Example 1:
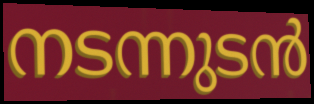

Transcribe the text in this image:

നടന്നുടൻ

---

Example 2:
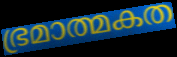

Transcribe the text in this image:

ഭ്രമാത്മകത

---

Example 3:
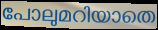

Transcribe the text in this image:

പോലുമറിയാതെ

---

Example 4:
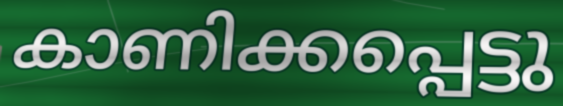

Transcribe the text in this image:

കാണിക്കപ്പെട്ടു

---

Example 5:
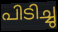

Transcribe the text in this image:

പിടിച്ചു